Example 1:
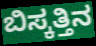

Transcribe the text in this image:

ಬಿಸ್ಕತ್ತಿನ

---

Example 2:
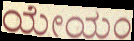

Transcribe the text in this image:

ಯೇಯಂ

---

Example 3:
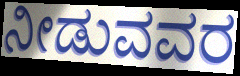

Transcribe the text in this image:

ನೀಡುವವರ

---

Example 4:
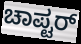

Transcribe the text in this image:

ಚಾಪ್ಟರ್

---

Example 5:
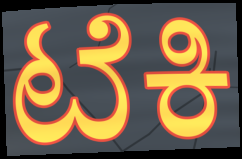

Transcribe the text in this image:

ಟೆಕಿ